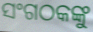
ସଂଗଠକଙ୍କୁ